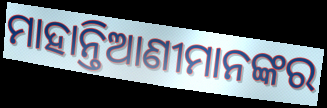
ମାହାନ୍ତିଆଣୀମାନଙ୍କର